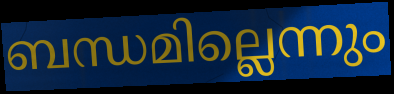
ബന്ധമില്ലെന്നും